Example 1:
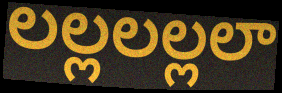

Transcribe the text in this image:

లల్లలల్లలా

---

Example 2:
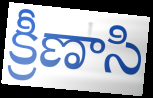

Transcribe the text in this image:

క్రీణాసి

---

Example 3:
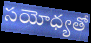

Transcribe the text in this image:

సయోధ్యతో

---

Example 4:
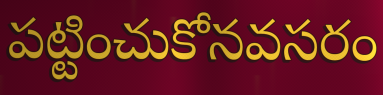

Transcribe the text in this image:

పట్టించుకోనవసరం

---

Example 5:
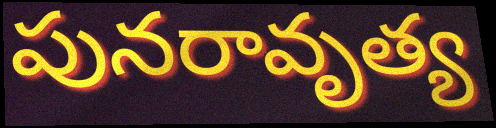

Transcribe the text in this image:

పునరావృత్య